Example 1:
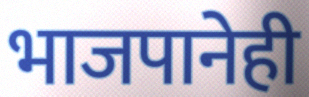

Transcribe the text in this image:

भाजपानेही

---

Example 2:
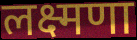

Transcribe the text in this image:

लक्ष्मणा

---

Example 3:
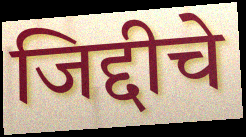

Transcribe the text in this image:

जिद्दीचे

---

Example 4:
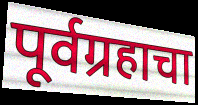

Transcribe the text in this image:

पूर्वग्रहाचा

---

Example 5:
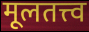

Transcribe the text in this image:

मूलतत्त्व